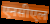
एनसीएल